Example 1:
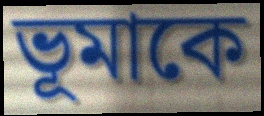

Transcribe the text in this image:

ভূমাকে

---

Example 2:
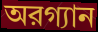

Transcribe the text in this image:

অরগ্যান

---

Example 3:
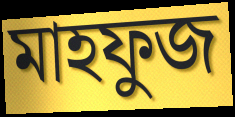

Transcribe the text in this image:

মাহফুজ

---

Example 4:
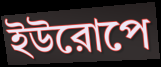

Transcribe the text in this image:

ইউরোপে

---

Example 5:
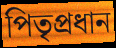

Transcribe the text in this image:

পিতৃপ্রধান